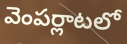
వెంపర్లాటలో